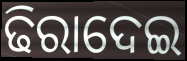
ଢିରାଦେଇ